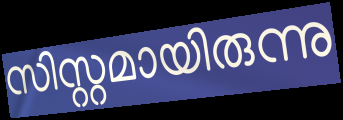
സിസ്റ്റമായിരുന്നു